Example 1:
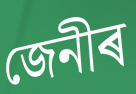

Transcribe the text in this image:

জেনীৰ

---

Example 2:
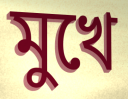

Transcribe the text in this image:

মুখে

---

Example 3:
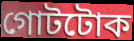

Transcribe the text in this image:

গোটটোক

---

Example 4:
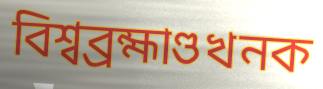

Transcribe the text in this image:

বিশ্বব্ৰহ্মাণ্ডখনক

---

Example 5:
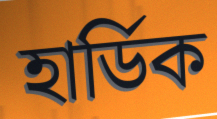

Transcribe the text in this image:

হাৰ্ডিক